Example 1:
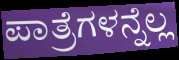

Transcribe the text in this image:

ಪಾತ್ರೆಗಳನ್ನೆಲ್ಲ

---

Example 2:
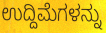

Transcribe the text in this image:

ಉದ್ದಿಮೆಗಳನ್ನು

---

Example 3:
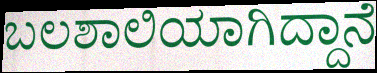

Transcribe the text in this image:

ಬಲಶಾಲಿಯಾಗಿದ್ದಾನೆ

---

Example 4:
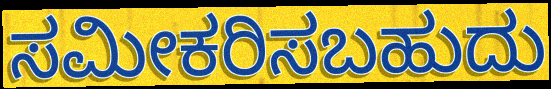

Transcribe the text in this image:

ಸಮೀಕರಿಸಬಹುದು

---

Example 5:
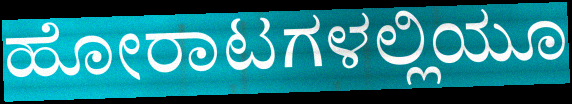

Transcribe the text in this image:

ಹೋರಾಟಗಳಲ್ಲಿಯೂ